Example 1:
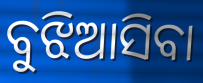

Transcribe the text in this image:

ବୁଝିଆସିବା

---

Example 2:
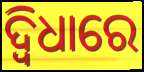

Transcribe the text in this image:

ଦ୍ୱିଧାରେ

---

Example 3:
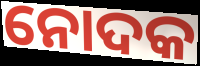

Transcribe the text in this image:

ନୋଦକ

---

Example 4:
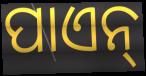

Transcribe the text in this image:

ପାଏନ୍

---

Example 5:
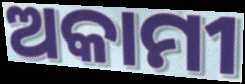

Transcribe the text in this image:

ଅକାମୀ